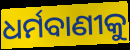
ଧର୍ମବାଣୀକୁ